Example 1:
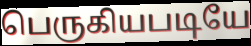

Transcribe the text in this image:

பெருகியபடியே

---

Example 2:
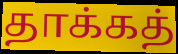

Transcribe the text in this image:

தாக்கத்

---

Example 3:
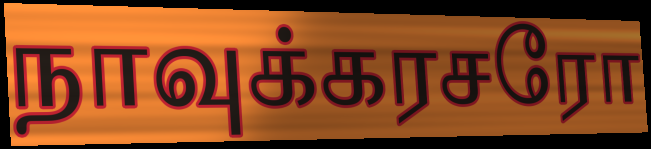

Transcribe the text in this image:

நாவுக்கரசரோ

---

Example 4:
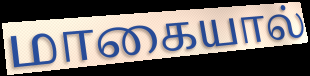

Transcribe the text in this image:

மாகையால்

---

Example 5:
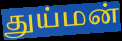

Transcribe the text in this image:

துய்மன்